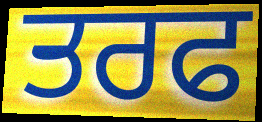
ਤਰਫ